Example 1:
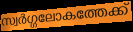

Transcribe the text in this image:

സ്വർഗ്ഗലോകത്തേക്ക്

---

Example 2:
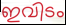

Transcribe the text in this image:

ഇവിടം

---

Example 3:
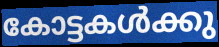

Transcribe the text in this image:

കോട്ടകൾക്കു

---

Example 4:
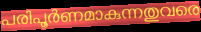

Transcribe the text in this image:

പരിപൂർണമാകുന്നതുവരെ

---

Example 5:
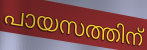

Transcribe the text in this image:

പായസത്തിന്